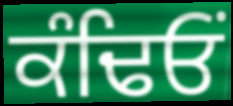
ਕੰਢਿਓਂ